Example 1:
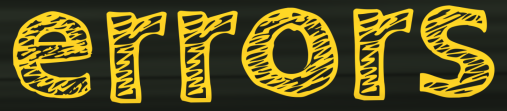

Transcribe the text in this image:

errors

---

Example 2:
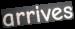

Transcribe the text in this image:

arrives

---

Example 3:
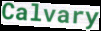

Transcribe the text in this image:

Calvary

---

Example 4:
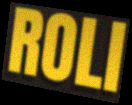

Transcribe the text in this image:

ROLI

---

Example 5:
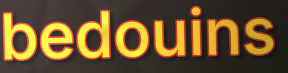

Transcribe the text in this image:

bedouins